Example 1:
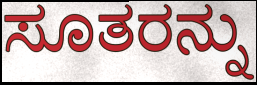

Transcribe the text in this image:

ಸೂತರನ್ನು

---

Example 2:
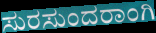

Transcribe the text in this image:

ಸುರಸುಂದರಾಂಗಿ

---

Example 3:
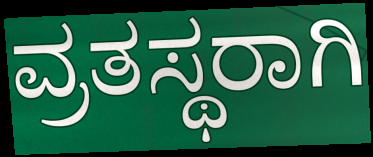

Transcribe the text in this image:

ವ್ರತಸ್ಥರಾಗಿ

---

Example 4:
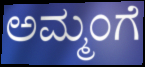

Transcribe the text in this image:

ಅಮ್ಮಂಗೆ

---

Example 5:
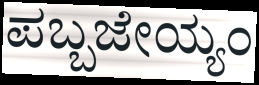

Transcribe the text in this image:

ಪಬ್ಬಜೇಯ್ಯಂ